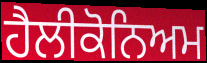
ਹੈਲੀਕੋਨਿਅਮ